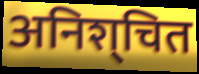
अनिश्चित